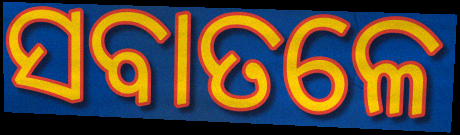
ସବାତଳେ